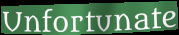
Unfortunate